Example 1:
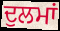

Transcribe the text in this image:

ਦੁਲਮਾਂ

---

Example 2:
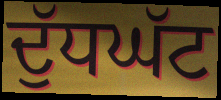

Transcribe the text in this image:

ਦੁੱਧਘੱਟ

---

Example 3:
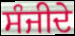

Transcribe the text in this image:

ਸੰਜੀਦੇ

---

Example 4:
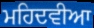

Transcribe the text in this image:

ਮਹਿਦਵੀਆ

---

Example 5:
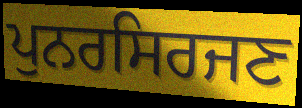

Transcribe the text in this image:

ਪੁਨਰਸਿਰਜਣ